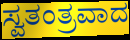
ಸ್ವತಂತ್ರವಾದ